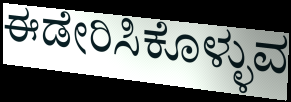
ಈಡೇರಿಸಿಕೊಳ್ಳುವ